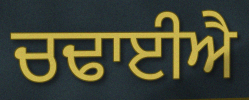
ਚਢਾਈਐ